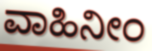
ವಾಹಿನೀಂ